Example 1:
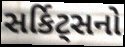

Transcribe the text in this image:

સર્કિટ્સનો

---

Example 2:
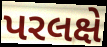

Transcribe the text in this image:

પરલક્ષે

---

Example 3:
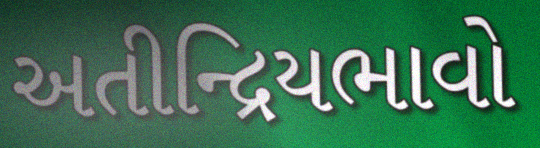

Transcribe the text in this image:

અતીન્દ્રિયભાવો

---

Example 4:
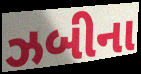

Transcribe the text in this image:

ઝબીના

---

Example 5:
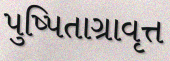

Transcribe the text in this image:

પુષ્પિતાગ્રાવૃત્ત